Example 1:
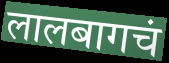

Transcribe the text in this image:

लालबागचं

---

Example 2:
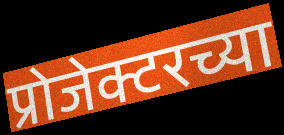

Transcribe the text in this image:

प्रोजेक्टरच्या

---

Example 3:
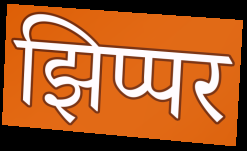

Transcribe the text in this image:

झिप्पर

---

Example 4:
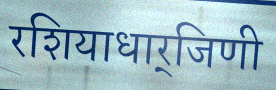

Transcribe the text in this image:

रशियाधार्जिणी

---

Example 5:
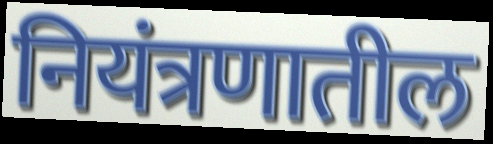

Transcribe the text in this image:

नियंत्रणातील